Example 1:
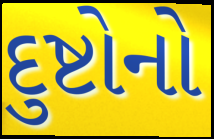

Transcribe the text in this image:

દુષ્ટોનો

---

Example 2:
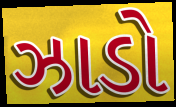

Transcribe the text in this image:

ઝાડો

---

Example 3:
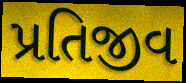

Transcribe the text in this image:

પ્રતિજીવ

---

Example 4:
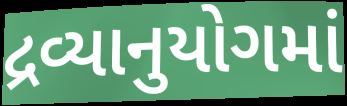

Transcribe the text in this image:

દ્રવ્યાનુયોગમાં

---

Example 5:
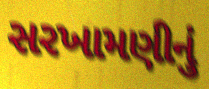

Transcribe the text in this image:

સરખામણીનું